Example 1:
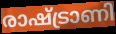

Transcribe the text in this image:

രാഷ്ട്രാണി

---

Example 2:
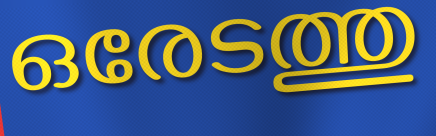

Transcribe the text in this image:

ഒരേടത്തു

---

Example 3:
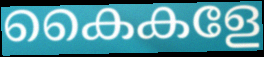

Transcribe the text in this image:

കൈകളേ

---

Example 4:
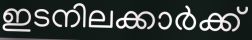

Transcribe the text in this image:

ഇടനിലക്കാർക്ക്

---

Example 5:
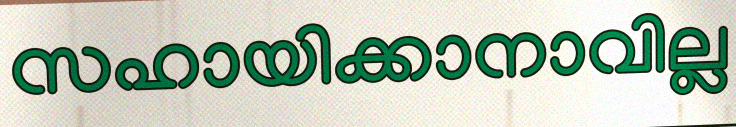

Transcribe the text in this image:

സഹായിക്കാനാവില്ല